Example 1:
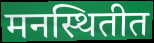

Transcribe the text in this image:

मनस्थितीत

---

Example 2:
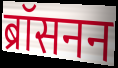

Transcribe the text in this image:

ब्रॉसनन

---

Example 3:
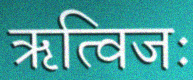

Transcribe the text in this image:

ऋत्विजः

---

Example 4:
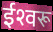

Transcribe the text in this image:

ईश्वरू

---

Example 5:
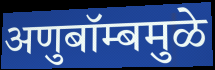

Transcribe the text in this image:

अणुबॉम्बमुळे